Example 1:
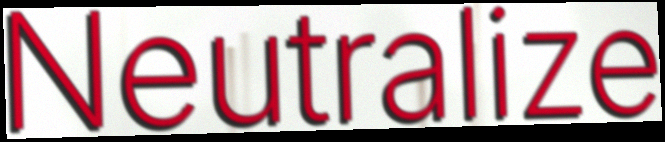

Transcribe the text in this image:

Neutralize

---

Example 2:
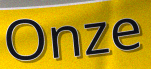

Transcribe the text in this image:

Onze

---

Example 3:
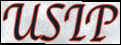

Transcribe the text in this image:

USIP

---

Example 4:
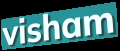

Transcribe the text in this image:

visham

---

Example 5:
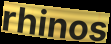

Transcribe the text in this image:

rhinos